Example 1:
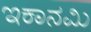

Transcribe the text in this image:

ಇಕಾನಮಿ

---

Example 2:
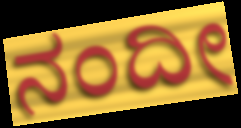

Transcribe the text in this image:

ನಂದೀ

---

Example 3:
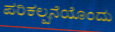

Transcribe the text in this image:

ಪರಿಕಲ್ಪನೆಯೊಂದು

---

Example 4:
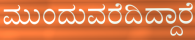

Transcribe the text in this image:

ಮುಂದುವರೆದಿದ್ದಾರೆ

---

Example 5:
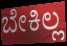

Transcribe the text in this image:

ಬೇಕಿಲ್ಲ